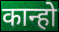
कान्हो